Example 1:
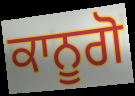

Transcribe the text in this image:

ਕਾਨੂਗੋ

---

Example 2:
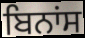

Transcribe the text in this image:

ਬਿਨਾਂਸ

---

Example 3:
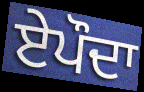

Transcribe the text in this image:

ਏਪੌਦਾ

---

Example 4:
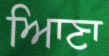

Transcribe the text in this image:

ਆਿਣਾ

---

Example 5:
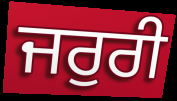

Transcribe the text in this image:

ਜਰੁਰੀ